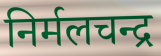
निर्मलचन्द्र